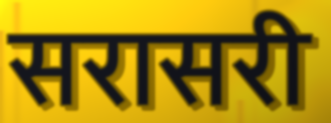
सरासरी